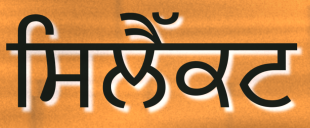
ਸਿਲੈੱਕਟ